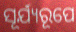
ସୂର୍ଯ୍ୟରୂପେ